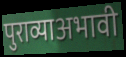
पुराव्याअभावी